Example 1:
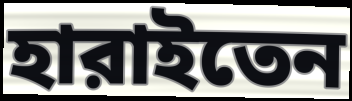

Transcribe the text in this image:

হারাইতেন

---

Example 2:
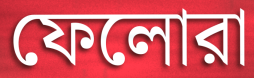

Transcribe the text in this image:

ফেলোরা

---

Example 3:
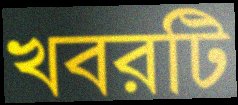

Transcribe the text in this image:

খবরটি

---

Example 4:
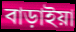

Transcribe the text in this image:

বাড়াইয়া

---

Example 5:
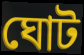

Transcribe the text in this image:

ঘোট